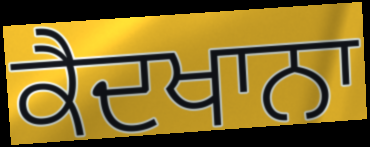
ਕੈਦਖਾਨਾ